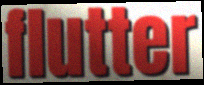
flutter